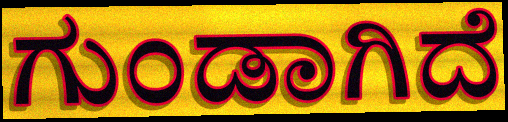
ಗುಂಡಾಗಿದೆ